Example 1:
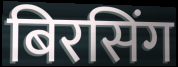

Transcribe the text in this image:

बिरसिंग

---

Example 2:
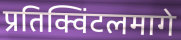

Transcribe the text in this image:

प्रतिक्विंटलमागे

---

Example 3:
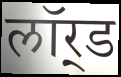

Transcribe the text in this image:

लॉर्ड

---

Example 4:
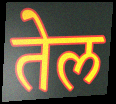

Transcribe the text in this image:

तेल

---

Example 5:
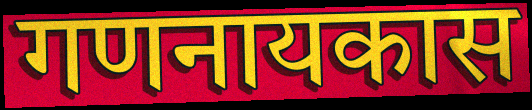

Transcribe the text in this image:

गणनायकास